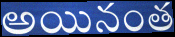
అయినంత